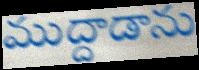
ముద్దాడాను